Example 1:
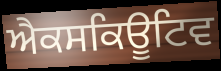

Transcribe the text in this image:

ਐਕਸਕਿਊਟਿਵ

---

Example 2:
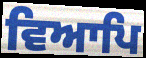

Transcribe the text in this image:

ਵਿਆਪਿ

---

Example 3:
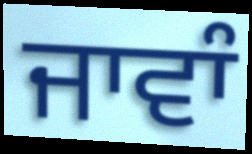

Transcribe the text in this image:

ਜਾਵਾੰ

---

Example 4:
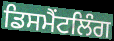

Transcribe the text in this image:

ਡਿਸਮੈਂਟਲਿੰਗ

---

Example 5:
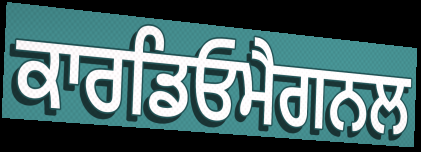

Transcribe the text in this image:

ਕਾਰਡਿਓਮੈਗਨਲ